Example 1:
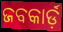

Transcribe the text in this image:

ଜବକାର୍ଡ଼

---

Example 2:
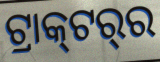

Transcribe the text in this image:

ଟ୍ରାକ୍‍ଟର୍‍ର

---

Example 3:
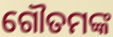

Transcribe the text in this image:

ଗୌତମଙ୍କ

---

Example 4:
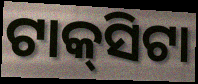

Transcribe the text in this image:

ଟାକ୍‌ସିଟା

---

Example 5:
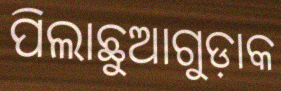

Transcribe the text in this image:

ପିଲାଛୁଆଗୁଡ଼ାକ